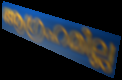
ആഗ്രഹമില്ല